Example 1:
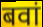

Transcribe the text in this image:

बवां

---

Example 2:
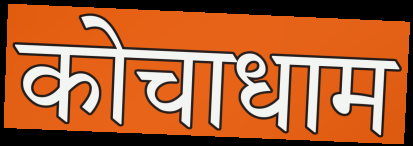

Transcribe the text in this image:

कोचाधाम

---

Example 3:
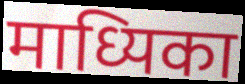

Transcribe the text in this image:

माध्यिका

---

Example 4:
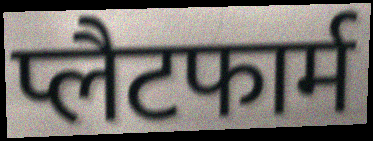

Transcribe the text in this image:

प्लैटफार्म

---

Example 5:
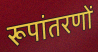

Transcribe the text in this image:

रूपांतरणों